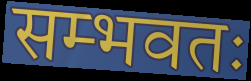
सम्भवतः